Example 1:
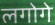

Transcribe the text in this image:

लगोगे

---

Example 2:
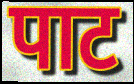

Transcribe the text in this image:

पाट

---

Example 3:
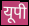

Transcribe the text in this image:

यूपी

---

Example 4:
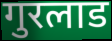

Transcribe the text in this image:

गुरलाड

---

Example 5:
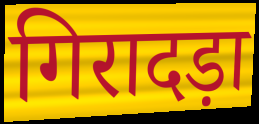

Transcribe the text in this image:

गिरादड़ा